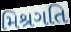
મિશ્રગતિ